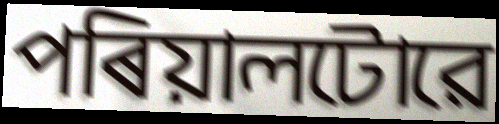
পৰিয়ালটোৱে